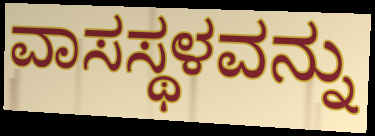
ವಾಸಸ್ಥಳವನ್ನು